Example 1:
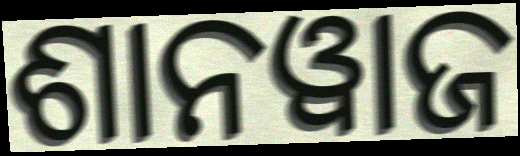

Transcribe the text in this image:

ଶାନୱାଜ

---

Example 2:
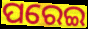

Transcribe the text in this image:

ପରେଇ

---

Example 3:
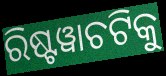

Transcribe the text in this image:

ରିଷ୍ଟୱାଚଟିକୁ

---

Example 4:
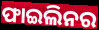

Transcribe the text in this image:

ଫାଇଲିନର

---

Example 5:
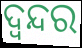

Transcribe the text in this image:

ଦ୍ବନ୍ଦର